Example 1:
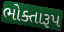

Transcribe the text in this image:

ભોક્તારૂપ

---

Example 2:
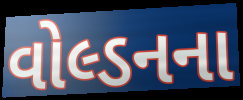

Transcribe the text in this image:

વોલ્ડનના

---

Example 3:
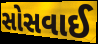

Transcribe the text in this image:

સોસવાઈ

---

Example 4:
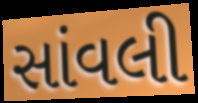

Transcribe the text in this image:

સાંવલી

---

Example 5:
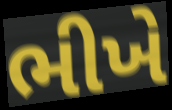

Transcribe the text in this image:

ભીખે